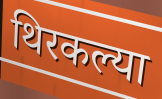
थिरकल्या